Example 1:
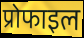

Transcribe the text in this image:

प्रोफाइल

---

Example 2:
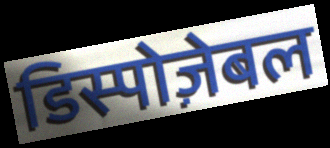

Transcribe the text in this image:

डिस्पोज़ेबल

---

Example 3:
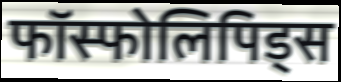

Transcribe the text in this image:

फॉस्फोलिपिड्स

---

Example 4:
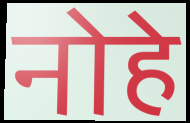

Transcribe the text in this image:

नोहे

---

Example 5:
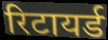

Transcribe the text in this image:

रिटायर्ड